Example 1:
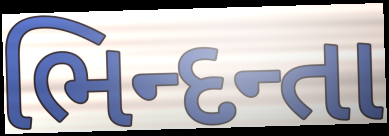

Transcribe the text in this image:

ભિન્દન્તા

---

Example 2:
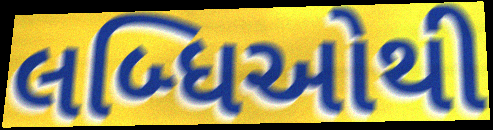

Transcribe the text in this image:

લબ્ધિઓથી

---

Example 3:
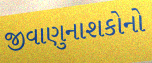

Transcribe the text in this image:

જીવાણુનાશકોનો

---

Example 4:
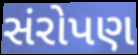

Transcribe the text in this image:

સંરોપણ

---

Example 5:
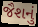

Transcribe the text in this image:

જૈશનું